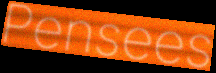
Pensees